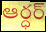
ఆర్ధర్